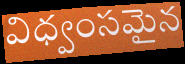
విధ్వంసమైన